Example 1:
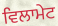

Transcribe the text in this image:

ਵਿਲਾਮੇਟ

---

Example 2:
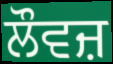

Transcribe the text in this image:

ਲੌਵਜ਼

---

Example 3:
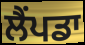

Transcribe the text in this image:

ਲੈਂਪਡਾ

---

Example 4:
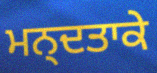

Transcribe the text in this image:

ਮਨ੍ਦਤਾਕੇ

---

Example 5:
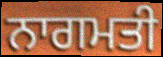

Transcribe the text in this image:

ਨਾਗਮਤੀ